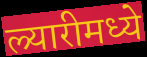
ल्यारीमध्ये